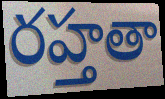
రహ్తతా